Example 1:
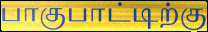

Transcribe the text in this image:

பாகுபாட்டிற்கு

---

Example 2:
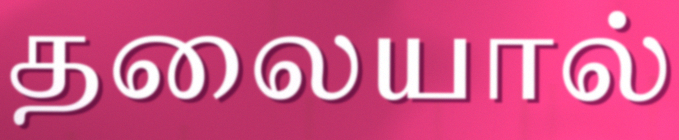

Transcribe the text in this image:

தலையால்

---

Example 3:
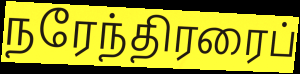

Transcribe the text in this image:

நரேந்திரரைப்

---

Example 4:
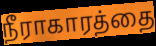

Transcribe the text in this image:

நீராகாரத்தை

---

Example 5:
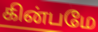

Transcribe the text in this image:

கின்பமே